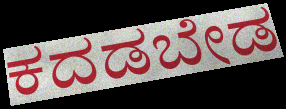
ಕದಡಬೇಡ